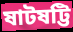
ষাটষট্টি